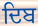
ਦਿਬ